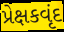
પ્રેક્ષકવૃંદ